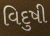
વિદુષી